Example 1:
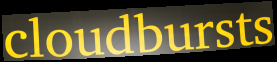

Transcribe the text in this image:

cloudbursts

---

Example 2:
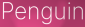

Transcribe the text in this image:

Penguin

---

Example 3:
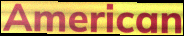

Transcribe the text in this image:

American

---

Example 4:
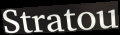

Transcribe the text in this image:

Stratou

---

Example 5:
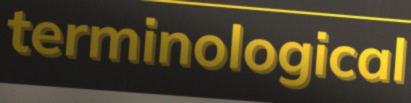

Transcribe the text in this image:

terminological